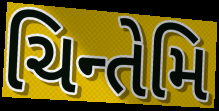
ચિન્તેમિ